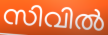
സിവിൽ